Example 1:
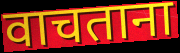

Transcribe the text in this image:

वाचताना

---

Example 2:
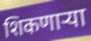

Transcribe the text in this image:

शिकणार्‍या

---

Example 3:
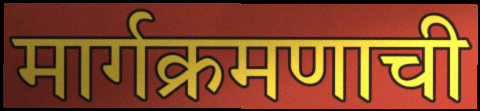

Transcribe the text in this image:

मार्गक्रमणाची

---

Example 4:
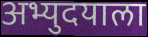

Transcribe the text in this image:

अभ्युदयाला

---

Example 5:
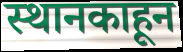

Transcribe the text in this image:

स्थानकाहून